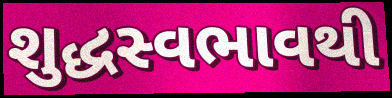
શુદ્ધસ્વભાવથી